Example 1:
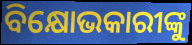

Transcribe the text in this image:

ବିକ୍ଷୋଭକାରୀଙ୍କୁ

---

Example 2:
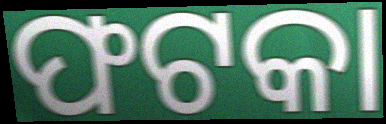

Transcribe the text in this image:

ଫଟକା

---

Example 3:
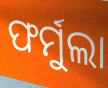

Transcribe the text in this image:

ଫର୍ମୁଲା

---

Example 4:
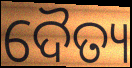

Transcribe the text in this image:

ଦୈତ୍ୟ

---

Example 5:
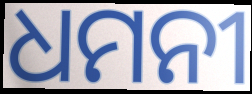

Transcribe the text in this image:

ଧମନୀ